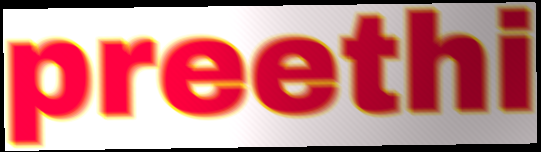
preethi